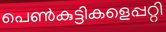
പെൺകുട്ടികളെപ്പറ്റി